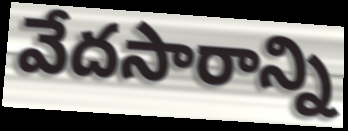
వేదసారాన్ని